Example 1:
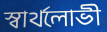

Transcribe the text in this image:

স্বার্থলোভী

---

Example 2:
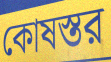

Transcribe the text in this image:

কোষস্তর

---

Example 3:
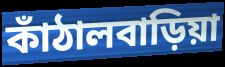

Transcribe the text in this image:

কাঁঠালবাড়িয়া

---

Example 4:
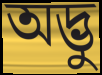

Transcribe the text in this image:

অদ্ভু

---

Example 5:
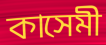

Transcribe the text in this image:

কাসেমী